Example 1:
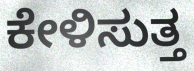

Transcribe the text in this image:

ಕೇಳಿಸುತ್ತ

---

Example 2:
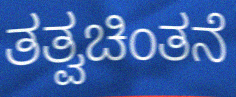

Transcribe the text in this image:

ತತ್ವಚಿಂತನೆ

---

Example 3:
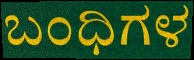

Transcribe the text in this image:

ಬಂಧಿಗಳ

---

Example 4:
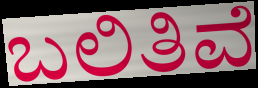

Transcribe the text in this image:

ಬಲಿತಿವೆ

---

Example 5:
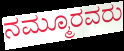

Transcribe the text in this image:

ನಮ್ಮೂರವರು